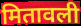
मितावली